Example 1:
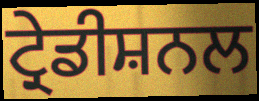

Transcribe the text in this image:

ਟ੍ਰੇਡੀਸ਼ਨਲ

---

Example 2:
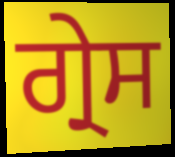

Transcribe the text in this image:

ਗ੍ਰੇਸ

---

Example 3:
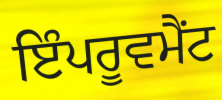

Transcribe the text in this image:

ਇੰਪਰੂਵਮੈਂਟ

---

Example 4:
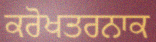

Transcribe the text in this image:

ਕਰੋਖਤਰਨਾਕ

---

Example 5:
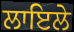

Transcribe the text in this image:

ਲਾਇਲੇ